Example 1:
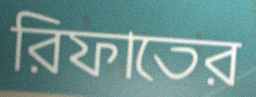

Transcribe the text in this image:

রিফাতের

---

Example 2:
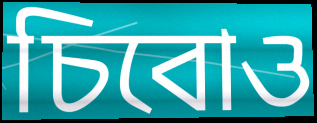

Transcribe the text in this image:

চিবোও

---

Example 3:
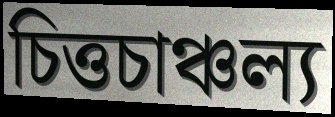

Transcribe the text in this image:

চিত্তচাঞ্চল্য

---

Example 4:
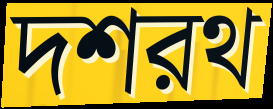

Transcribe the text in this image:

দশরথ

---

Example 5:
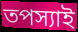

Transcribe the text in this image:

তপস্যাই